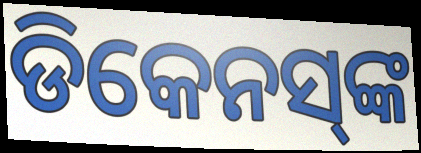
ଡିକେନସ୍‌ଙ୍କ